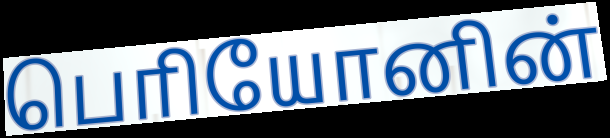
பெரியோனின்